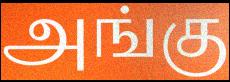
அங்கு